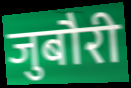
जुबौरी